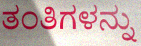
ತಂತಿಗಳನ್ನು